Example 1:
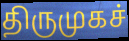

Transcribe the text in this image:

திருமுகச்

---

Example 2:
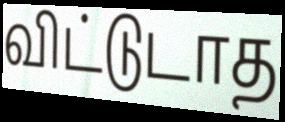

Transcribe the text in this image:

விட்டுடாத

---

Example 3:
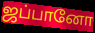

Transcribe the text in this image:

ஜப்பானோ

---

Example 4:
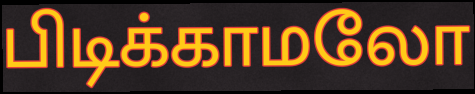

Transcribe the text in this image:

பிடிக்காமலோ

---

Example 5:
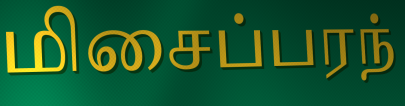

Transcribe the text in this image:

மிசைப்பரந்